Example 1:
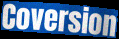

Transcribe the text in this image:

Coversion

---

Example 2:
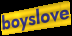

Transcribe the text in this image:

boyslove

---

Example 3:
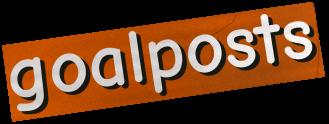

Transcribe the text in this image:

goalposts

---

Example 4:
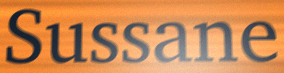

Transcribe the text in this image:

Sussane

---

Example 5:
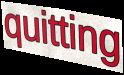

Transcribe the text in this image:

quitting